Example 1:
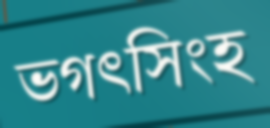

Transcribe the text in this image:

ভগৎসিংহ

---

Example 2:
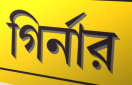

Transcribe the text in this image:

গির্নার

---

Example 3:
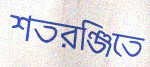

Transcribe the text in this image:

শতরঞ্জিতে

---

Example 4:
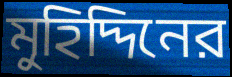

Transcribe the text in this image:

মুহিদ্দিনের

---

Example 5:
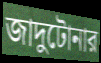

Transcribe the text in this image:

জাদুটোনার